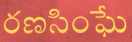
రణసింఘే